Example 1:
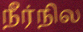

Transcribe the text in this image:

நீர்நில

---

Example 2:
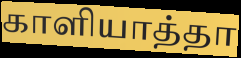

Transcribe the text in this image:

காளியாத்தா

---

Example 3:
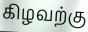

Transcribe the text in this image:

கிழவற்கு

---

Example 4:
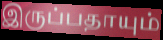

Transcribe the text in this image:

இருப்பதாயும்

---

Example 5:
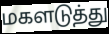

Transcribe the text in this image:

மகளடுத்து